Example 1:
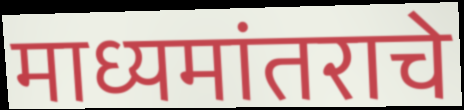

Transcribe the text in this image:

माध्यमांतराचे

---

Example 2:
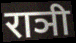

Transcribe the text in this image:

राञी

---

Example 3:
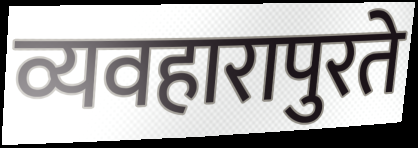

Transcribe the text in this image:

व्यवहारापुरते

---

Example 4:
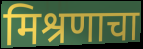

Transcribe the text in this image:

मिश्रणाचा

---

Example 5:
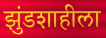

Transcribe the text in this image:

झुंडशाहीला